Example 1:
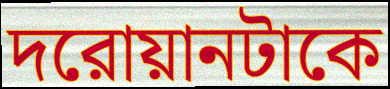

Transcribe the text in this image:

দরোয়ানটাকে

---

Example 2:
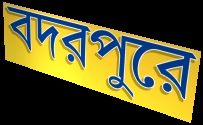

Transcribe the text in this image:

বদরপুরে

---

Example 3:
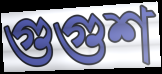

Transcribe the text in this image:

গুগুশ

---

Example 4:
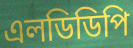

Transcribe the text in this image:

এলডিডিপি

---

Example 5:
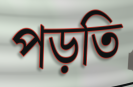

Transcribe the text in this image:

পড়তি